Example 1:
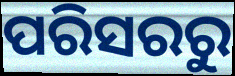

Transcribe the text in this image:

ପରିସରରୁ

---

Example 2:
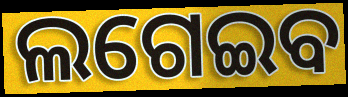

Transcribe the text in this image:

ଲଗେଇବ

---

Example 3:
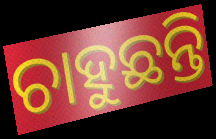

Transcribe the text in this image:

ଚାହୁଛନ୍ତି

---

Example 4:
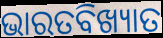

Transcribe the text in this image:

ଭାରତବିଖ୍ୟାତ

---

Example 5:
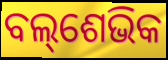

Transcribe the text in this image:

ବଲ୍‌ଶେଭିକ